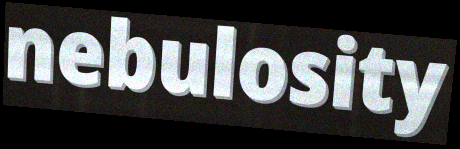
nebulosity